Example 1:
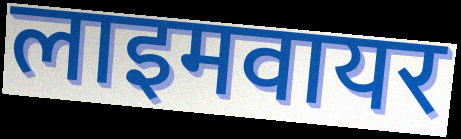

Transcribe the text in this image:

लाइमवायर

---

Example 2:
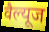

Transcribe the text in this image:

वैल्यूज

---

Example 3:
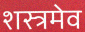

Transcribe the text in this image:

शस्त्रमेव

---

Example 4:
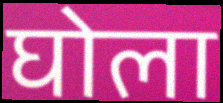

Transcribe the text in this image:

घोला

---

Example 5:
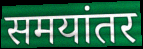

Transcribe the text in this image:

समयांतर